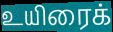
உயிரைக்